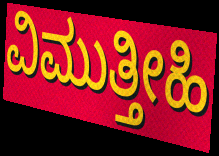
ವಿಮುತ್ತೀಹಿ